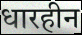
धारहीन